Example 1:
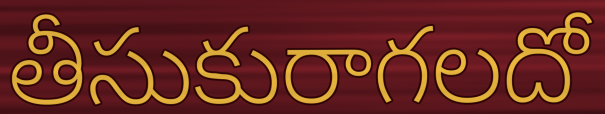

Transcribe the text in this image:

తీసుకురాగలదో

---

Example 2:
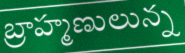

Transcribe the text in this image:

బ్రాహ్మణులున్న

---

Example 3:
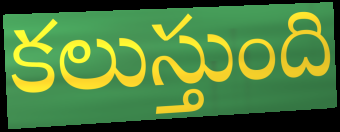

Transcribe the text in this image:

కలుస్తుంది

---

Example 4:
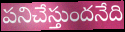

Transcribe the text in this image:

పనిచేస్తుందనేది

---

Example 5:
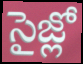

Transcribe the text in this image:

సైజ్లో